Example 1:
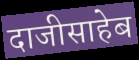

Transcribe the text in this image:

दाजीसाहेब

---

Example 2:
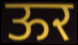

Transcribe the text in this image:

ऊर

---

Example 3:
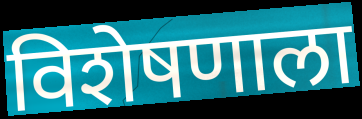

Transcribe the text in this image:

विशेषणाला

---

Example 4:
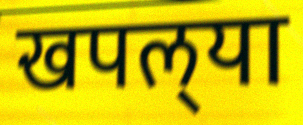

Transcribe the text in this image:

खपल्या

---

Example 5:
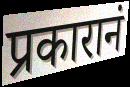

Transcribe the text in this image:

प्रकारानं